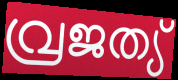
വ്രജത്യ്